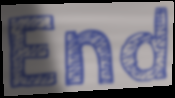
End